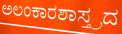
ಅಲಂಕಾರಶಾಸ್ತ್ರದ